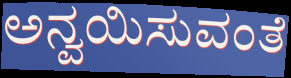
ಅನ್ವಯಿಸುವಂತೆ